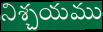
నిశ్చయము